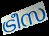
ട്രീസ